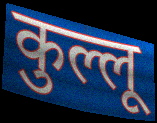
कुल्लू